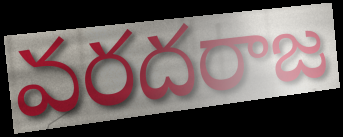
వరదరాజ